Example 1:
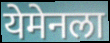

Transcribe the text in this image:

येमेनला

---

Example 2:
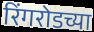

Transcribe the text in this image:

रिंगरोडच्या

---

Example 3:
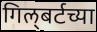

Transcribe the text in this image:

गिल्बर्टच्या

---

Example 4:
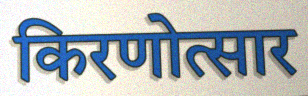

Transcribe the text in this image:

किरणोत्सार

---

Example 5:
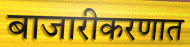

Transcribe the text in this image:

बाजारीकरणात